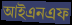
আইএনএফ